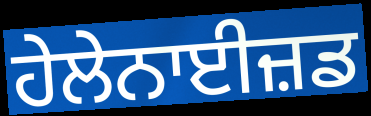
ਹੇਲੇਨਾਈਜ਼ਡ